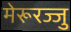
मेरूरज्जु